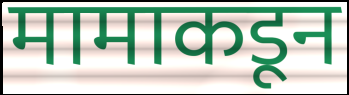
मामाकडून